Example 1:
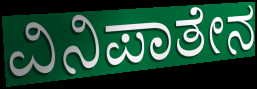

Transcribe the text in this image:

ವಿನಿಪಾತೇನ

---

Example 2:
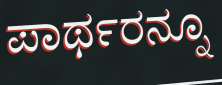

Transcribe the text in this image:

ಪಾರ್ಥರನ್ನೂ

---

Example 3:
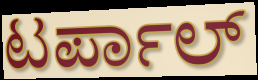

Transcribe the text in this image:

ಟರ್ಪಾಲ್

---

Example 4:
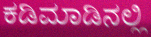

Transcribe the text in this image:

ಕಡಿಮಾಡಿನಲ್ಲಿ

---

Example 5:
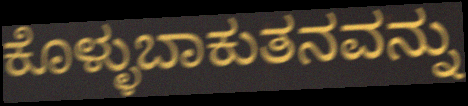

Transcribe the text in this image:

ಕೊಳ್ಳುಬಾಕುತನವನ್ನು